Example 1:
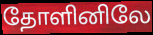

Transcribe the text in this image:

தோளினிலே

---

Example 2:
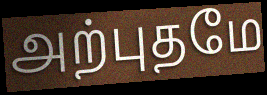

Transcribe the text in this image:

அற்புதமே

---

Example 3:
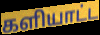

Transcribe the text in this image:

களியாட்ட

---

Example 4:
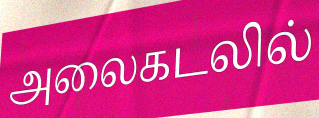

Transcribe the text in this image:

அலைகடலில்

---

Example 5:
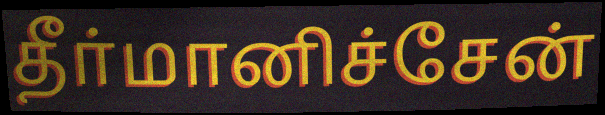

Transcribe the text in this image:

தீர்மானிச்சேன்